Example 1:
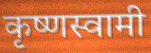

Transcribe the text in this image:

कृष्णस्वामी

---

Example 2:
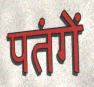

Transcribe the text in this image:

पतंगें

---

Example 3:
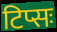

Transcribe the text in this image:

टिप्सः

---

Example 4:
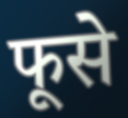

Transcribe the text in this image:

फूसे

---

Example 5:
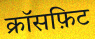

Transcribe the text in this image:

क्रॉसफ़िट